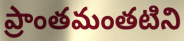
ప్రాంతమంతటిని